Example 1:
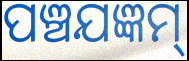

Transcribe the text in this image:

ପଞ୍ଚଯଜ୍ଞମ୍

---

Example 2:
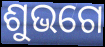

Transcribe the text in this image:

ଶୁଭଗେ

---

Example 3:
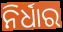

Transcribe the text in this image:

ନିର୍ଧାର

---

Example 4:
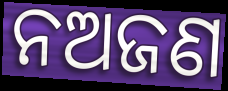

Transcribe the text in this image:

ନଅଜଣ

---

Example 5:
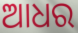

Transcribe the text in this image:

ଆଧର